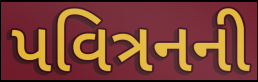
પવિત્રનની